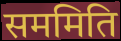
सममिति